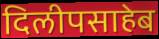
दिलीपसाहेब